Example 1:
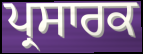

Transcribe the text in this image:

ਪ੍ਰਸਾਰਕ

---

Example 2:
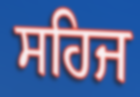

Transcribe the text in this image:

ਸਹਿਜ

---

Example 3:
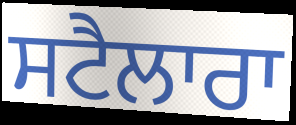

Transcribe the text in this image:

ਸਟੈਲਾਰਾ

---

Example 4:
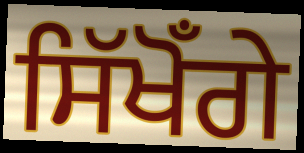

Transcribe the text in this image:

ਸਿੱਖੋਁਗੇ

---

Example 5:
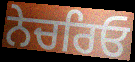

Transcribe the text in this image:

ਨੇਚਰਿਓ